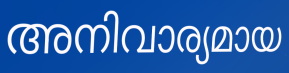
അനിവാര്യമായ